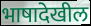
भाषादेखील